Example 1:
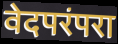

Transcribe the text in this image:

वेदपरंपरा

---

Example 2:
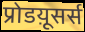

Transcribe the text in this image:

प्रोडय़ूसर्स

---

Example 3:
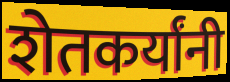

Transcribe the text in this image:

शेतकर्यांनी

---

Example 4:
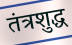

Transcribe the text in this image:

तंत्रशुद्ध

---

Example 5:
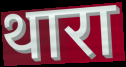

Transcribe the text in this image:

थारा